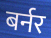
बर्नर